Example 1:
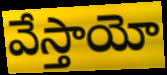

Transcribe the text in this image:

వేస్తాయో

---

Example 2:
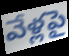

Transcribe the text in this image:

వేళ్లపై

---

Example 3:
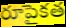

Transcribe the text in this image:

రూపైకత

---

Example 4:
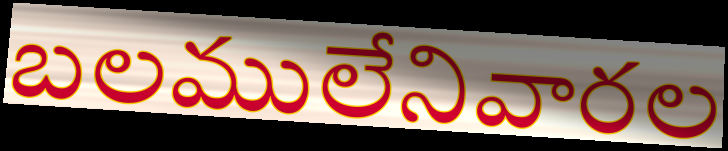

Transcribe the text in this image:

బలములేనివారల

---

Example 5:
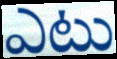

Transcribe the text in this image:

ఎటు